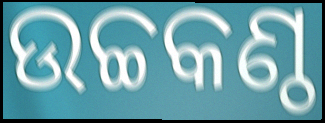
ଉଚ୍ଚକଣ୍ଠ